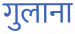
गुलाना